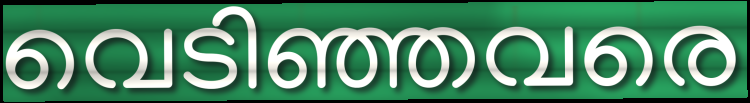
വെടിഞ്ഞവരെ